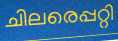
ചിലരെപ്പറ്റി